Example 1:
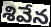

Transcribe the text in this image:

శివేన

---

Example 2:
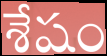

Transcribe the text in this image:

శేషం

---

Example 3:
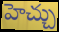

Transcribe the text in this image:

హెచ్చు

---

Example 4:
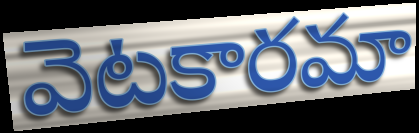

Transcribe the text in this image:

వెటకారమా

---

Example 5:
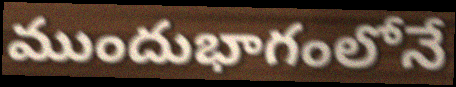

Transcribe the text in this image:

ముందుభాగంలోనే